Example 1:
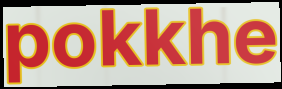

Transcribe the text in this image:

pokkhe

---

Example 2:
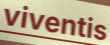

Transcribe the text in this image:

viventis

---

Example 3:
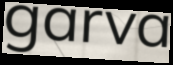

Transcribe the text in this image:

garva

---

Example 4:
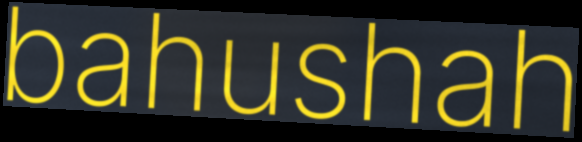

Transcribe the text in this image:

bahushah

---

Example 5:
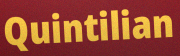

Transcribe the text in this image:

Quintilian